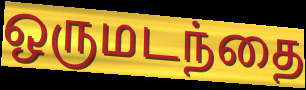
ஒருமடந்தை